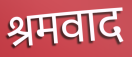
श्रमवाद